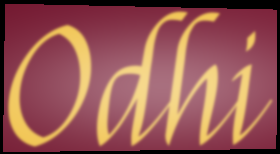
Odhi